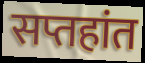
सप्तहांत